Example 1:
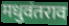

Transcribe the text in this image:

मधुवंतराव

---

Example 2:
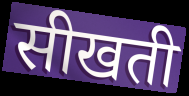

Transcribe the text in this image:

सीखती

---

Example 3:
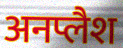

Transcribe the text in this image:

अनप्लैश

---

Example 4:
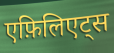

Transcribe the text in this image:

एफ़िलिएट्स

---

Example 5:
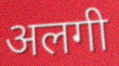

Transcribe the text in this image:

अलगी